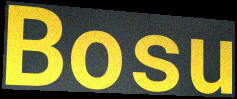
Bosu